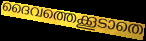
ദൈവത്തെക്കൂടാതെ